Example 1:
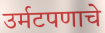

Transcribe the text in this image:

उर्मटपणाचे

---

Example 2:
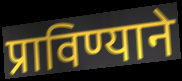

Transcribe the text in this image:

प्राविण्याने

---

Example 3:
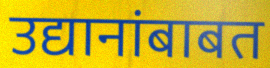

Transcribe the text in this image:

उद्यानांबाबत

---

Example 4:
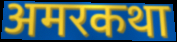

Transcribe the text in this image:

अमरकथा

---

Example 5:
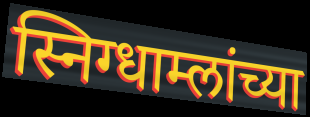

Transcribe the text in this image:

स्निग्धाम्लांच्या